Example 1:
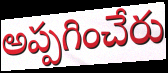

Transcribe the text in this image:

అప్పగించేరు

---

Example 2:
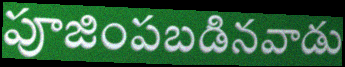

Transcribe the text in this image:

పూజింపబడినవాడు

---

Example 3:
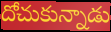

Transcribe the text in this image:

దోచుకున్నాడు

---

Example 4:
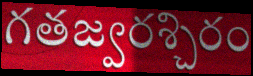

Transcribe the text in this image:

గతజ్వరశ్చిరం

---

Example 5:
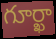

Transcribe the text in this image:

గూర్ఖా